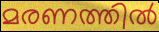
മരണത്തിൽ